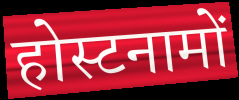
होस्टनामों